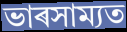
ভাৰসাম্যত